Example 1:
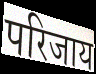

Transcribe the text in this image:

परिजाय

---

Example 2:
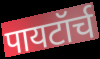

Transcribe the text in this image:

पायटॉर्च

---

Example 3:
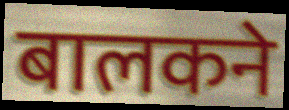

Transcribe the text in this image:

बालकने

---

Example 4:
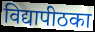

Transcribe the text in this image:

विद्यापीठका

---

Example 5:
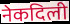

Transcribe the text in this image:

नेकदिली